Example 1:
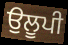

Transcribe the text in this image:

ਉਲੂਪੀ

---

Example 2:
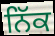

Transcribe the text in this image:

ਨਿੱਕ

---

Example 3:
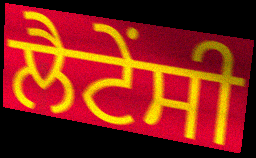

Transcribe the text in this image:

ਲੈਟੇਂਸੀ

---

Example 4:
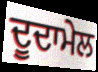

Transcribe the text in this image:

ਦੂਦਾਮੇਲ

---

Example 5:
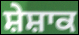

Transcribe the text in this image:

ਸ਼ੇਸ਼ਾਕ